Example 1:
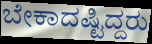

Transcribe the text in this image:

ಬೇಕಾದಷ್ಟಿದ್ದರು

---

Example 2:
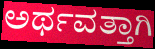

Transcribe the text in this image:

ಅರ್ಥವತ್ತಾಗಿ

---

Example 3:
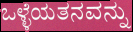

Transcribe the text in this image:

ಒಳ್ಳೆಯತನವನ್ನು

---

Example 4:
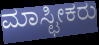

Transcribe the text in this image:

ಮಾಸ್ಟೀಕರು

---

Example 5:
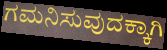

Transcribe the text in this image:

ಗಮನಿಸುವುದಕ್ಕಾಗಿ